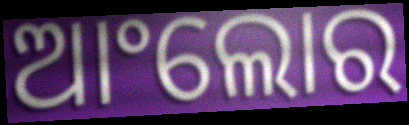
ଆଂଲୋର